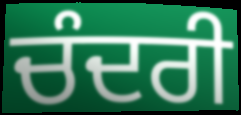
ਚੰਦਰੀ